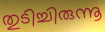
തുടിച്ചിരുന്നൂ